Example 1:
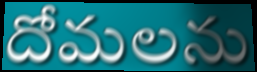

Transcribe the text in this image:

దోమలను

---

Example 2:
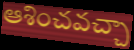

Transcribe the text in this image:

ఆశించవచ్చా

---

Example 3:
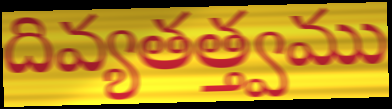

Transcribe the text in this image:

దివ్యతత్త్వము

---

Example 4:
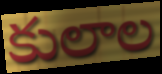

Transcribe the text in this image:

కులాల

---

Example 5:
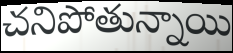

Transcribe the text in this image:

చనిపోతున్నాయి